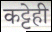
कट्टेही